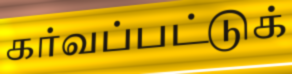
கர்வப்பட்டுக்